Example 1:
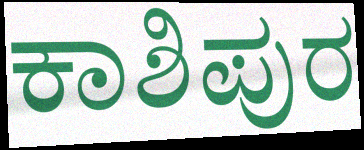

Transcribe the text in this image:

ಕಾಶಿಪುರ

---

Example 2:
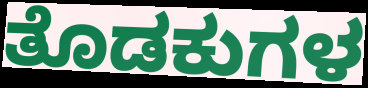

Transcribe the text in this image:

ತೊಡಕುಗಳ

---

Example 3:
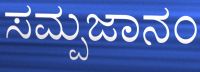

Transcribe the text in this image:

ಸಮ್ಪಜಾನಂ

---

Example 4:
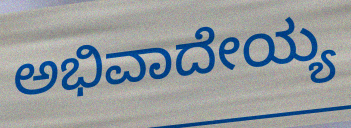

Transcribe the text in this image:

ಅಭಿವಾದೇಯ್ಯ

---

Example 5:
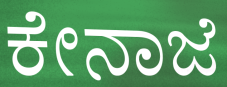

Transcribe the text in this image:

ಕೇನಾಜೆ